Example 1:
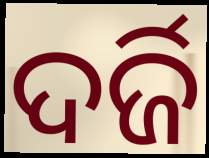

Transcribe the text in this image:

ଦର୍ଜି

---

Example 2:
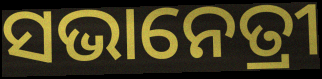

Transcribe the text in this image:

ସଭାନେତ୍ରୀ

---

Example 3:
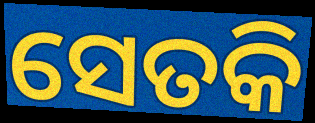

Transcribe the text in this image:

ସେତକି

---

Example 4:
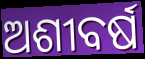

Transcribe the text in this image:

ଅଶୀବର୍ଷ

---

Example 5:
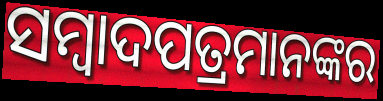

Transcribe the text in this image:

ସମ୍ୱାଦପତ୍ରମାନଙ୍କର